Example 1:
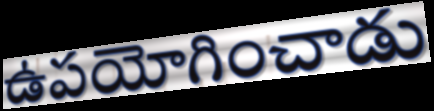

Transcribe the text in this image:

ఉపయోగించాడు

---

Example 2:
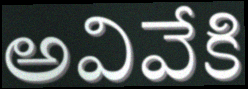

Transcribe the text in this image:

అవివేకి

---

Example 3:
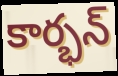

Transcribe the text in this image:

కార్భన్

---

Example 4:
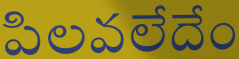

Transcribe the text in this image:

పిలవలేదేం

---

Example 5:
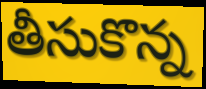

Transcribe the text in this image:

తీసుకొన్న